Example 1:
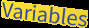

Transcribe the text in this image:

Variables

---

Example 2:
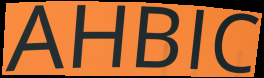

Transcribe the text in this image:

AHBIC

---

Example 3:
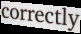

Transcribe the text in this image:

correctly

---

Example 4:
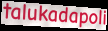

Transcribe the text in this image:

talukadapoli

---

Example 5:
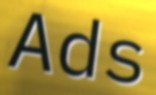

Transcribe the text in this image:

Ads